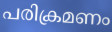
പരിക്രമണം